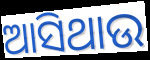
ଆସିଥାଉ